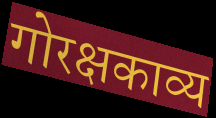
गोरक्षकाव्य